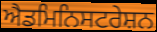
ਐਡਮਿਨਿਸਟਰੇਸ਼ਨ